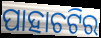
ପାହାଚଟିର